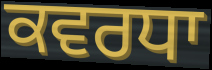
ਕਵਰਧਾ